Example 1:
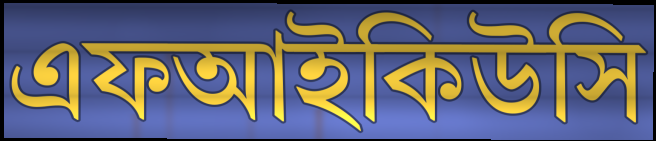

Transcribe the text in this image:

এফআইকিউসি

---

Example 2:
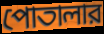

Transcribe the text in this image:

পোতালার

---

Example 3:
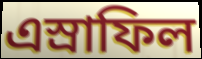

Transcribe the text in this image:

এস্রাফিল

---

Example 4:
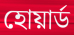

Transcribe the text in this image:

হোয়ার্ড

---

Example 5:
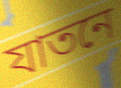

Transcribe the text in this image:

যাতনে